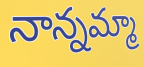
నాన్నమ్మా